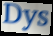
Dys